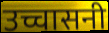
उच्चासनी